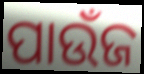
ପାଉଁଜ